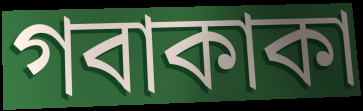
গবাকাকা